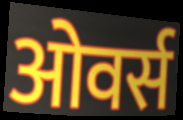
ओवर्स